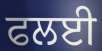
ਫਲਈ